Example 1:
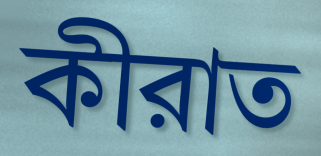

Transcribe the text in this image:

কীরাত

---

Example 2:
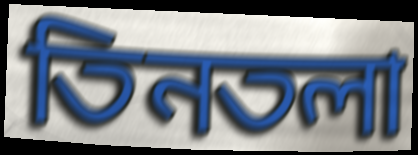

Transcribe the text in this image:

তিনতলা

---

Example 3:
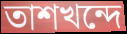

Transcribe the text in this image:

তাশখন্দে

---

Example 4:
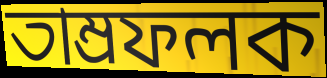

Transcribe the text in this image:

তাম্রফলক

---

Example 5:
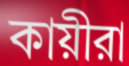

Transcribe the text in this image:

কায়ীরা